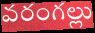
వరంగల్లు